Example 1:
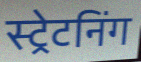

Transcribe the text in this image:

स्ट्रेटनिंग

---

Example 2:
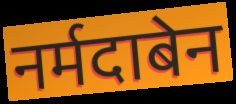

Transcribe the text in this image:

नर्मदाबेन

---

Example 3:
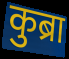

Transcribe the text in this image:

कुब्रा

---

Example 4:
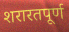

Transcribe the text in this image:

शरारतपूर्ण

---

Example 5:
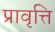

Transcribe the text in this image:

प्रावृत्ति